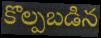
కొల్పబడిన